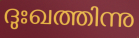
ദുഃഖത്തിന്നു